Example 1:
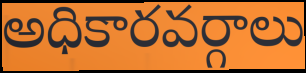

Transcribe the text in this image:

అధికారవర్గాలు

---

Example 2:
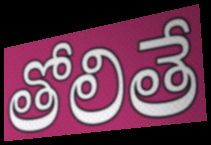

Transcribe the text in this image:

తోలితే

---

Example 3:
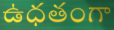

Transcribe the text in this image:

ఉధతంగా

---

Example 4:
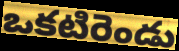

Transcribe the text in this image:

ఒకటిరెండు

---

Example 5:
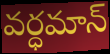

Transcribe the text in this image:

వర్ధమాన్